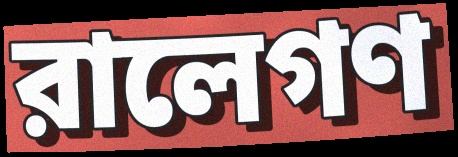
রালেগণ